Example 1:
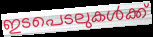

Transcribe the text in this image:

ഇടപെടലുകൾക്ക്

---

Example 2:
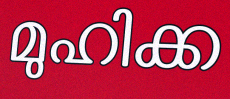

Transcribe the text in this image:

മുഹിക്ക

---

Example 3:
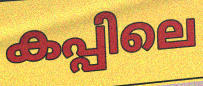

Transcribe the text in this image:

കപ്പിലെ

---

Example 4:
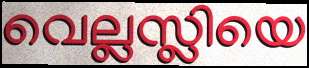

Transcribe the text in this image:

വെല്ലസ്ലിയെ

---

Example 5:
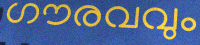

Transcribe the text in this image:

ഗൗരവവും